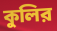
কুলির